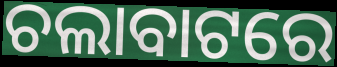
ଚଲାବାଟରେ